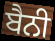
ਬੈਨੀ